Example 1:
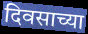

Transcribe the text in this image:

दिवसाच्या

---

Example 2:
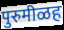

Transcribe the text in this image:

पुरुमीळह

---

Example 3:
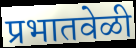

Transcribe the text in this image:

प्रभातवेळी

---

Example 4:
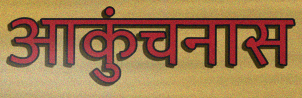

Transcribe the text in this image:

आकुंचनास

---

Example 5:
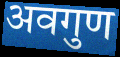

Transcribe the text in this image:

अवगुण